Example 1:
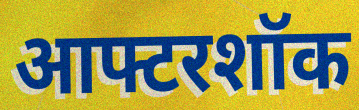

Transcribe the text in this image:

आफ्टरशॉक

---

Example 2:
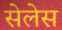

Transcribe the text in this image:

सेलेस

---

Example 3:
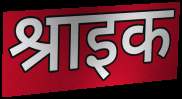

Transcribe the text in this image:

श्राइक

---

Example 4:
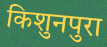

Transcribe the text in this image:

किशुनपुरा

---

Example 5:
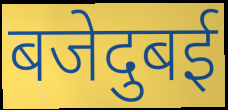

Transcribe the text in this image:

बजेदुबई